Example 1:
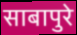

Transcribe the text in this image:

साबापुरे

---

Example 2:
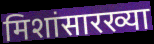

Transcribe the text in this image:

मिशांसारख्या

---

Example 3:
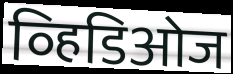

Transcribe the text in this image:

व्हिडिओज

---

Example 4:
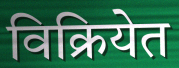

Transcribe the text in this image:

विक्रियेत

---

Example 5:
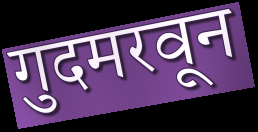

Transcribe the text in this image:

गुदमरवून